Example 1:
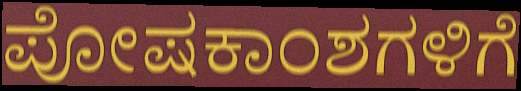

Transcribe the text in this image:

ಪೋಷಕಾಂಶಗಳಿಗೆ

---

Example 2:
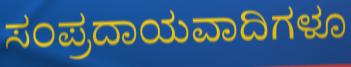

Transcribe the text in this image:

ಸಂಪ್ರದಾಯವಾದಿಗಳೂ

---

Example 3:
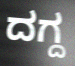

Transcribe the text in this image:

ದಗ್ದ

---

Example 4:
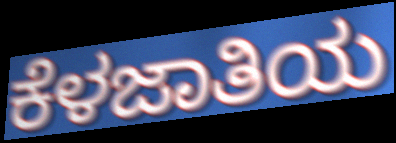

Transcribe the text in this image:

ಕೆಳಜಾತಿಯ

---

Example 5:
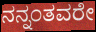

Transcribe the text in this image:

ನನ್ನಂತವರೇ